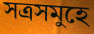
সত্ৰসমুহে